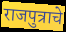
राजपुत्राचे